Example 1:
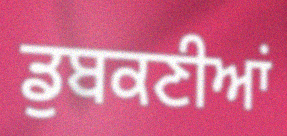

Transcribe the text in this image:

ਡੁਬਕਣੀਆਂ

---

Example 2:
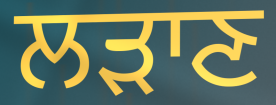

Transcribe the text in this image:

ਲੜਾਣ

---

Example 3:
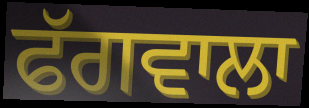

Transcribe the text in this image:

ਫੱਗਵਾਲਾ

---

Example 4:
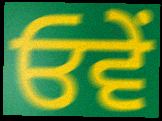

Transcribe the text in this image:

ਓਵੇਂ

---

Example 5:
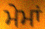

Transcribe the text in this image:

ਮੇਮਾਂ